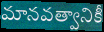
మానవత్వానికీ